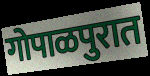
गोपाळपुरात